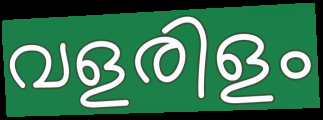
വളരിളം